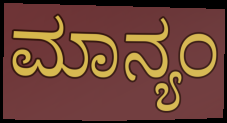
ಮಾನ್ಯಂ